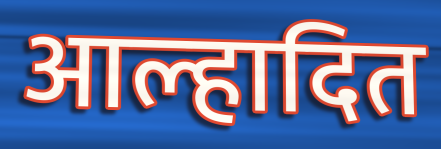
आल्हादित